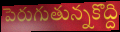
పెరుగుతున్నకొద్ది